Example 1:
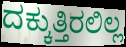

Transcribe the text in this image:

ದಕ್ಕುತ್ತಿರಲಿಲ್ಲ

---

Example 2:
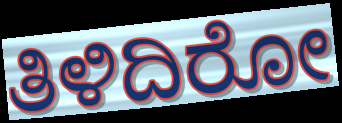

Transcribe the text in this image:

ತಿಳಿದಿರೋ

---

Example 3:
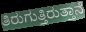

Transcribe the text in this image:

ತಿರುಗುತ್ತಿರುತ್ತಾನೆ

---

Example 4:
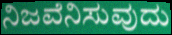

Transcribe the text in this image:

ನಿಜವೆನಿಸುವುದು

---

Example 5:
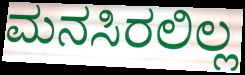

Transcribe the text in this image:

ಮನಸಿರಲಿಲ್ಲ